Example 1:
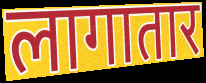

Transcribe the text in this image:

लागातार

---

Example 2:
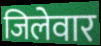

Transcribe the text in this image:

जिलेवार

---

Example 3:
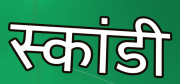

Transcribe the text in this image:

स्कांडी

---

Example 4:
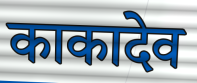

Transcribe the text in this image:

काकादेव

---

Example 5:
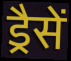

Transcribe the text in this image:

ड्रैसें